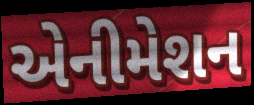
એનીમેશન